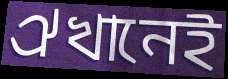
ঐখানেই